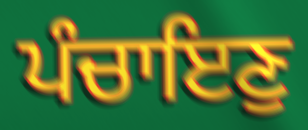
ਪੰਚਾਇਣੁ